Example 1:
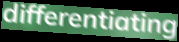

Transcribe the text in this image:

differentiating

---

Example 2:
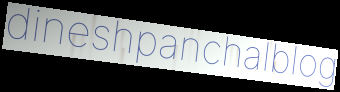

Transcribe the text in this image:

dineshpanchalblog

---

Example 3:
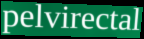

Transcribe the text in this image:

pelvirectal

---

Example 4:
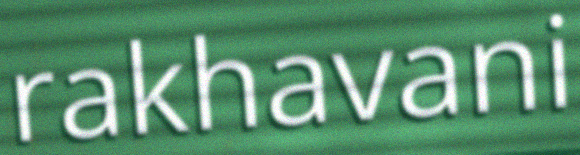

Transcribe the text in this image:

rakhavani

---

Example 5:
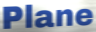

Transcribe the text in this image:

Plane